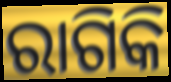
ରାଗିକି